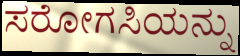
ಸರೋಗಸಿಯನ್ನು